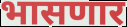
भासणार